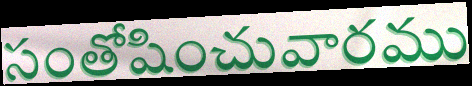
సంతోషించువారము